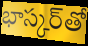
భాస్కర్‌తో